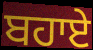
ਬਹਾਏ